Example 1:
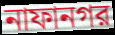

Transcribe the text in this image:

নাফানগর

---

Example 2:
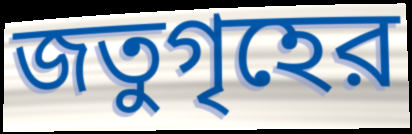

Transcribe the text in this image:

জতুগৃহের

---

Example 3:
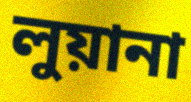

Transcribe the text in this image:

লুয়ানা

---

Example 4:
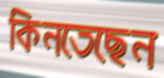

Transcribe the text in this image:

কিনতেছেন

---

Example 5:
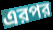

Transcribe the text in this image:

এরপর